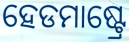
ହେଡମାଷ୍ଟ୍ରେ